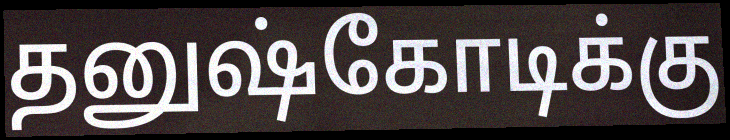
தனுஷ்கோடிக்கு